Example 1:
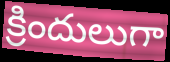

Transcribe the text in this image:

క్రిందులుగా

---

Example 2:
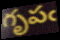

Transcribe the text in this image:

గృపఁ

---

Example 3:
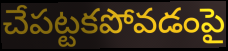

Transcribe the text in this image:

చేపట్టకపోవడంపై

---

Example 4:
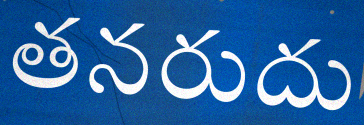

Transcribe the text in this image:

తనరుదు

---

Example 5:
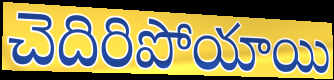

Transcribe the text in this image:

చెదిరిపోయాయి